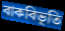
বাকবিভূতি